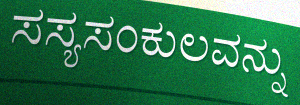
ಸಸ್ಯಸಂಕುಲವನ್ನು